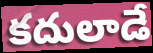
కదులాడే